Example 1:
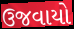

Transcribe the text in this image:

ઉજવાયો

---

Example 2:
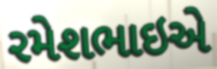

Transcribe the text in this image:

રમેશભાઇએ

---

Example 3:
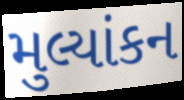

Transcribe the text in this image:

મુલ્યાંકન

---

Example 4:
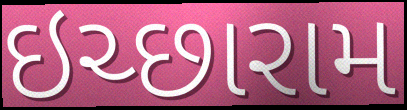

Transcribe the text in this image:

ઇચ્છારામ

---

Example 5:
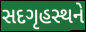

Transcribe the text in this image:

સદગૃહસ્થને